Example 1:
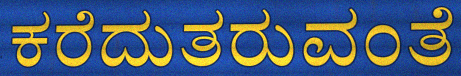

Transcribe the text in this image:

ಕರೆದುತರುವಂತೆ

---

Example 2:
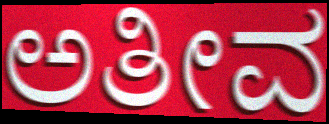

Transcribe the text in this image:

ಅತೀವ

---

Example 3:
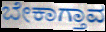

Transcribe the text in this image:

ಬೇಕಾಗ್ತಾವ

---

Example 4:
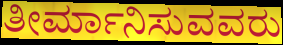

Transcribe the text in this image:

ತೀರ್ಮಾನಿಸುವವರು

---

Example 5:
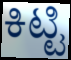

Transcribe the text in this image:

ಕಿಟ್ಟಿ